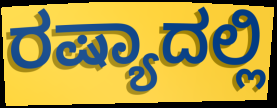
ರಷ್ಯಾದಲ್ಲಿ